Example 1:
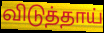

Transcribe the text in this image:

விடுத்தாய்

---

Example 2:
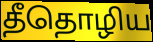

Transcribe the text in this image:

தீதொழிய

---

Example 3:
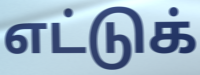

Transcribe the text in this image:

எட்டுக்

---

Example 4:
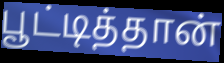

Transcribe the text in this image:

பூட்டித்தான்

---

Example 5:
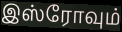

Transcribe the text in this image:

இஸ்ரோவும்